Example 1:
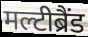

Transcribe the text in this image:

मल्टीब्रैंड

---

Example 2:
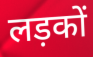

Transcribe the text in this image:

लड़कों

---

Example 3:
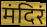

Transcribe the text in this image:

मंदिरं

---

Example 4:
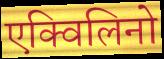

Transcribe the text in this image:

एक्विलिनो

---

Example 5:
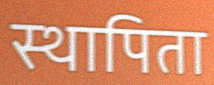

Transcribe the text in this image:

स्थापिता